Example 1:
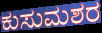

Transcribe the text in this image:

ಕುಸುಮಶರ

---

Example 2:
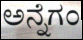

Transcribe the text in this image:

ಅನ್ನೆಗಂ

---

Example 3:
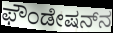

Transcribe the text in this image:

ಫೌಂಡೇಷನ್‌ನ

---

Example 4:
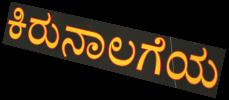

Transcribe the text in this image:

ಕಿರುನಾಲಗೆಯ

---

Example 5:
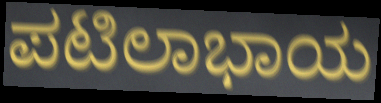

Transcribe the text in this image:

ಪಟಿಲಾಭಾಯ